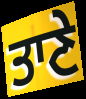
ਤਾਣੇ